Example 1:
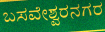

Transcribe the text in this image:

ಬಸವೇಶ್ವರನಗರ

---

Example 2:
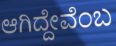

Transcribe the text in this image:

ಆಗಿದ್ದೇವೆಂಬ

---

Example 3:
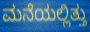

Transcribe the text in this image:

ಮನೆಯಲ್ಲಿತ್ತು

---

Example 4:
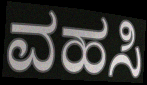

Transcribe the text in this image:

ವಹಸಿ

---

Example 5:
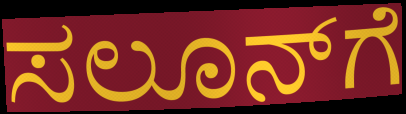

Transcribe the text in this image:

ಸಲೂನ್‍ಗೆ